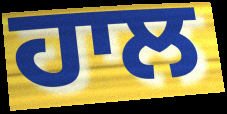
ਹਾਲ